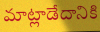
మాట్లాడేదానికి